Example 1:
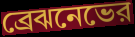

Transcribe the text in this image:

ব্রেঝনেভের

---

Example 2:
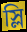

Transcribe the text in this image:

স্লি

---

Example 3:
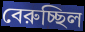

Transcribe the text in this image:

বেরুচ্ছিল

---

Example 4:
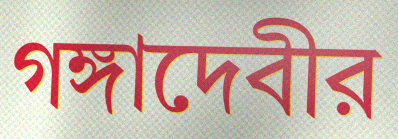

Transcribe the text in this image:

গঙ্গাদেবীর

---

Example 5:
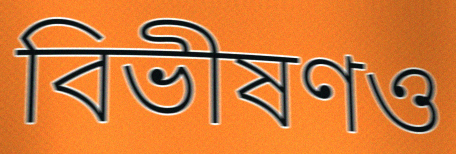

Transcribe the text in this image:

বিভীষণও